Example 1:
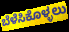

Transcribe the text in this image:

ಬೆಳೆಸಿಕೊಳ್ಳಲು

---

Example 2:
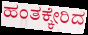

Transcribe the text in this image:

ಹಂತಕ್ಕೇರಿದ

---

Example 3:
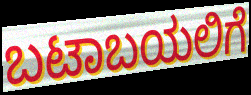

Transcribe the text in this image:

ಬಟಾಬಯಲಿಗೆ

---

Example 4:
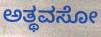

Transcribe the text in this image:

ಅತ್ಥವಸೋ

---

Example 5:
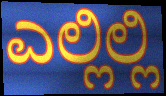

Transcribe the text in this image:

ಎಲ್ಲಿಲ್ಲಿ